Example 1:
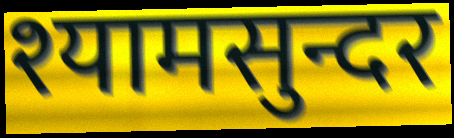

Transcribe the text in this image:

श्यामसुन्दर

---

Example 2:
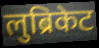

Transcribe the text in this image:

लुब्रिकेट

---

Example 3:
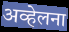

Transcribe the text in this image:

अव्हेलना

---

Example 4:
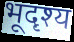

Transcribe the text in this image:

भूदृश्य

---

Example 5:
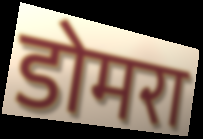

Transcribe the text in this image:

डोमरा